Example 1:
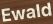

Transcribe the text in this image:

Ewald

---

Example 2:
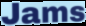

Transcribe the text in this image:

Jams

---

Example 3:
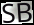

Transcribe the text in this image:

SB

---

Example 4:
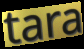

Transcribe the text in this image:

tara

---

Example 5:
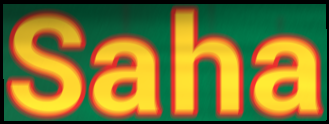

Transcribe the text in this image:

Saha